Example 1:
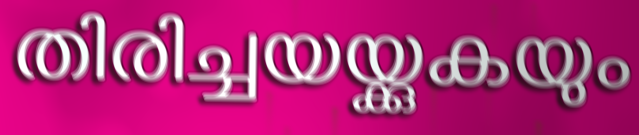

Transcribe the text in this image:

തിരിച്ചയയ്ക്കുകയും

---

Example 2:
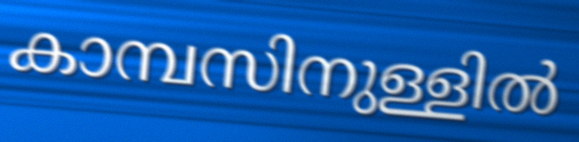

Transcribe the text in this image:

കാമ്പസിനുള്ളിൽ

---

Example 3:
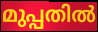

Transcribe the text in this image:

മുപ്പതിൽ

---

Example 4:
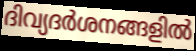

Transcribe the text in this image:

ദിവ്യദർശനങ്ങളിൽ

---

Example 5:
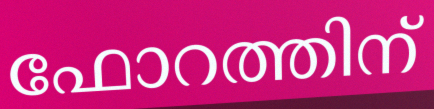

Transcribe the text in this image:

ഫോറത്തിന്